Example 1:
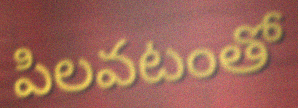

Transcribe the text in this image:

పిలవటంతో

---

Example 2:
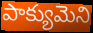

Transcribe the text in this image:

పాక్యుమెని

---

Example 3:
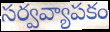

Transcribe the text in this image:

సర్వవ్యాపకం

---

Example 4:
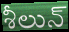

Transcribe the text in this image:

శీలున్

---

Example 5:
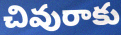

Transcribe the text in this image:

చివురాకు